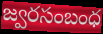
జ్వరసంబంధ